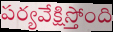
పర్యవేక్షిస్తోంది